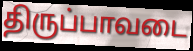
திருப்பாவடை